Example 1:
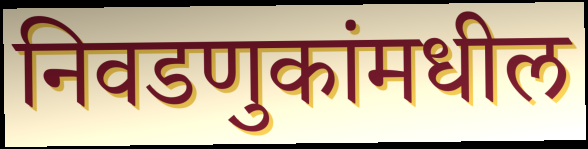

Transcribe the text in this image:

निवडणुकांमधील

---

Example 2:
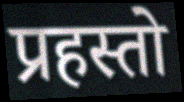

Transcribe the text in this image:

प्रहस्तो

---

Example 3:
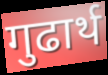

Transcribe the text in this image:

गुढार्थ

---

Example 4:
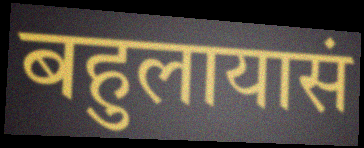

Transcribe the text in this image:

बहुलायासं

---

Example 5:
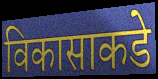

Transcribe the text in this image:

विकासाकडे